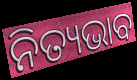
ନିତ୍ୟଭାବ